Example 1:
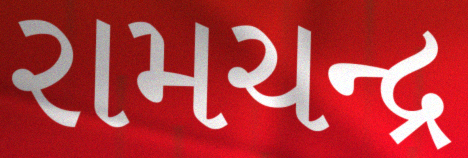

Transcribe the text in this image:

રામચન્દ્ર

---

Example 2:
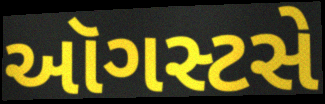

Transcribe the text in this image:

ઑગસ્ટસે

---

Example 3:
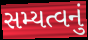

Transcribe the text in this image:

સમ્યત્વનું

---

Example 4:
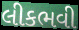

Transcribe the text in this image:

લીકભવી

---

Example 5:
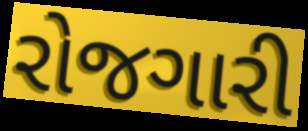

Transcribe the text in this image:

રોજગારી